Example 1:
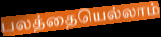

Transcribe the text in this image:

பலத்தையெல்லாம்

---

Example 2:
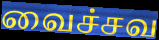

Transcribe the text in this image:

வைச்சவ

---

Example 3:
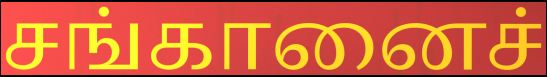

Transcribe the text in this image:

சங்கானைச்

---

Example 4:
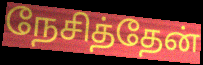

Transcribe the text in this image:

நேசித்தேன்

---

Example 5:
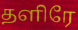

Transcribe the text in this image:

தளிரே